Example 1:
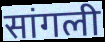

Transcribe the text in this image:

सांगली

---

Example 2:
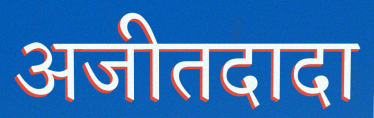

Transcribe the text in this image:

अजीतदादा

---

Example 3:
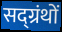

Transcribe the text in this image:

सद्ग्रंथों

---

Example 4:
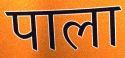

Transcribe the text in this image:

पाला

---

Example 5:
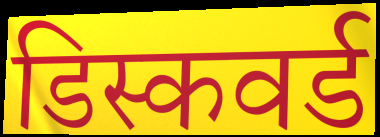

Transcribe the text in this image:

डिस्कवर्ड